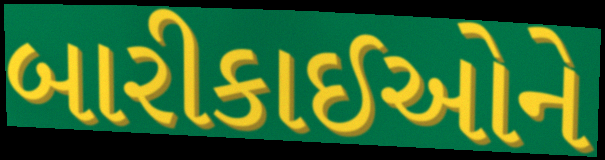
બારીકાઈઓને